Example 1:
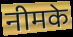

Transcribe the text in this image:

नीमके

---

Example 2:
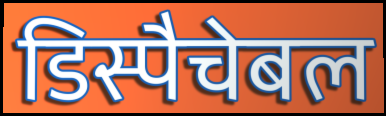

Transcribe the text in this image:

डिस्पैचेबल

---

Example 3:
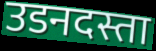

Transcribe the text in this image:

उडनदस्ता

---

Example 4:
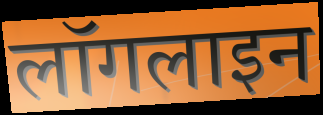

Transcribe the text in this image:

लॉगलाइन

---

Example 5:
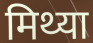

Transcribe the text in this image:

मिथ्‍या